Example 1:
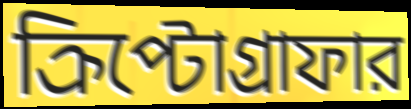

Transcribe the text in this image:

ক্রিপ্টোগ্রাফার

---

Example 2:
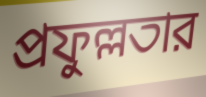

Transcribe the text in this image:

প্রফুল্লতার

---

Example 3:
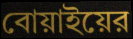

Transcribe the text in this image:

বোয়াইয়ের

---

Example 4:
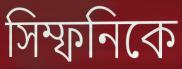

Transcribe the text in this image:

সিম্ফনিকে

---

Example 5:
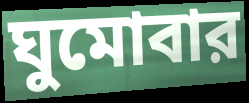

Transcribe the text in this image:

ঘুমোবার